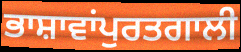
ਭਾਸ਼ਾਵਾਂਪੁਰਤਗਾਲੀ